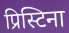
प्रिस्टिना